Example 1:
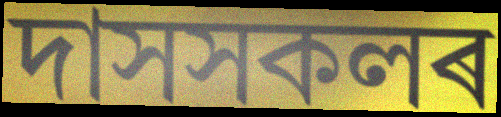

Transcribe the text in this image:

দাসসকলৰ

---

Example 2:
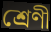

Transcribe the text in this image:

শ্ৰেণী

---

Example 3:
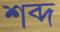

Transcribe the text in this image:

শব্দ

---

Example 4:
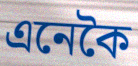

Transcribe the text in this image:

এনেকৈ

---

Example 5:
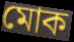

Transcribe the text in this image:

মোক